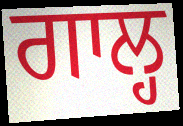
ਗਾਲ੍ਹ